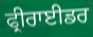
ਫ੍ਰੀਰਾਈਡਰ